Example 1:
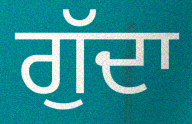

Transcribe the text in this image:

ਗੁੱਦਾ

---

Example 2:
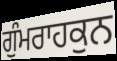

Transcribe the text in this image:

ਗੁੰਮਰਾਹਕੁਨ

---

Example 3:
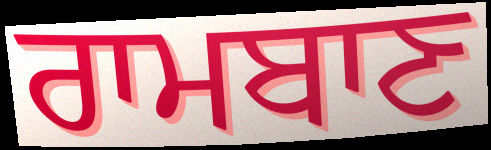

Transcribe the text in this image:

ਰਾਮਬਾਣ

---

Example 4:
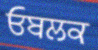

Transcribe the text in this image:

ਓਬਲਕ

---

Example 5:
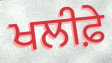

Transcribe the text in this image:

ਖਲੀਫ਼ੇ